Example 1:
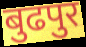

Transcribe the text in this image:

बुढपुर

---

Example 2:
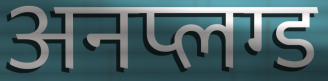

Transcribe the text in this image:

अनप्लग्ड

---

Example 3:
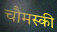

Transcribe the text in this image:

चौमस्की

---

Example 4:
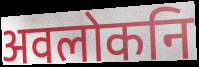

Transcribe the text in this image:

अवलोकनि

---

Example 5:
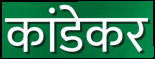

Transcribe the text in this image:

कांडेकर